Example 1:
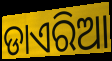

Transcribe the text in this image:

ଡାଏରିଆ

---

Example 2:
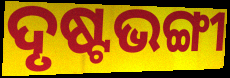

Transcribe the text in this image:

ଦୃଷ୍ଟଭଙ୍ଗୀ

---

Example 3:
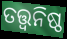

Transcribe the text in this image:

ତତ୍ତ୍ୱନିଷ୍ଠ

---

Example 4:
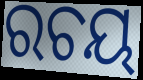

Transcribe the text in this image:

ରଚୟ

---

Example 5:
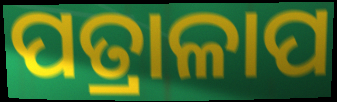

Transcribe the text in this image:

ପତ୍ରାଳାପ